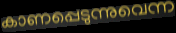
കാണപ്പെടുന്നുവെന്ന